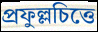
প্রফুল্লচিত্তে